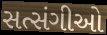
સત્સંગીઓ